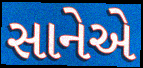
સાનેએ